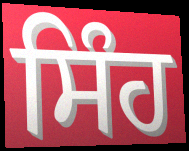
ਸਿੰਹ